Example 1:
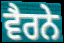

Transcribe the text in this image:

ਵੈਰਨੇ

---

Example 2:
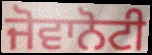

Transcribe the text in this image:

ਜੋਵਾਨੋਟੀ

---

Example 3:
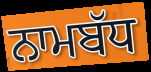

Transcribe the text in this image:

ਨਾਮਬੱਧ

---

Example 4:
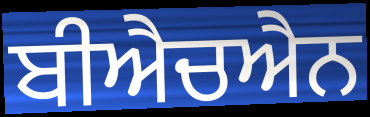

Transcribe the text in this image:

ਬੀਐਚਐਨ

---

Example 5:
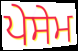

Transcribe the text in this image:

ਪੇਸੇਮ